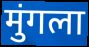
मुंगला